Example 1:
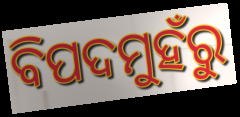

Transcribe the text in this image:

ବିପଦମୁହଁରୁ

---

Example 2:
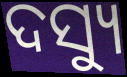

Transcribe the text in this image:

ଦସ୍ୟୁ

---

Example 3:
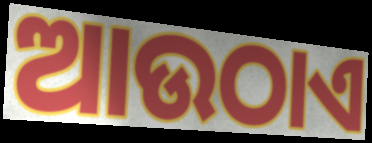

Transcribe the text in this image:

ଆଉଠାଏ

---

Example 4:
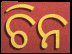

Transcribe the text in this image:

ଚିନ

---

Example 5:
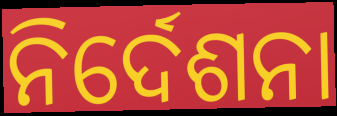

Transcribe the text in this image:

ନିର୍ଦେଶନା